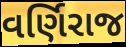
વર્ણિરાજ